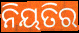
ନିୟତିର